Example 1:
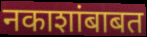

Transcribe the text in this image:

नकाशांबाबत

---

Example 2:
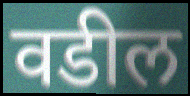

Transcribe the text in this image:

वडील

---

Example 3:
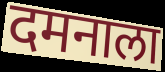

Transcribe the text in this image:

दमनाला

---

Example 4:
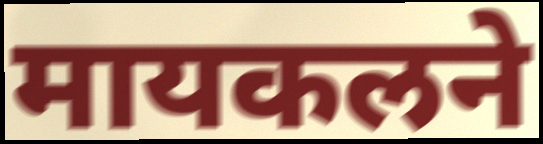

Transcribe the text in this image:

मायकलने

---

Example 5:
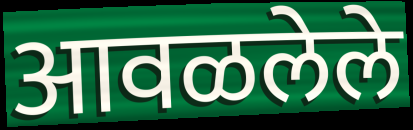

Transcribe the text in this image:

आवळलेले